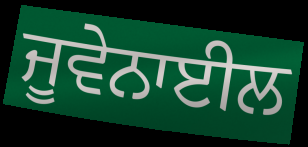
ਜੂਵੇਨਾਈਲ